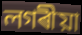
লগৰীয়া